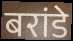
बरांडे